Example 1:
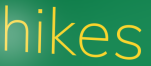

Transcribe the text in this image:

hikes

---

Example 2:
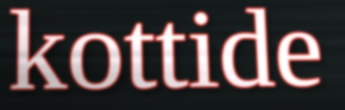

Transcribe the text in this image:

kottide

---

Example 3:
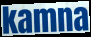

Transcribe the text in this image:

kamna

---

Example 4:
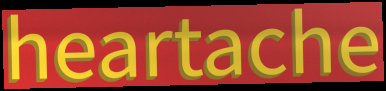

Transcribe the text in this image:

heartache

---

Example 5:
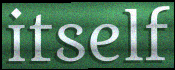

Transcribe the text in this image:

itself